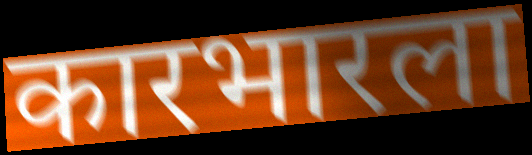
कारभारला